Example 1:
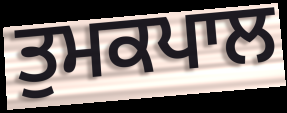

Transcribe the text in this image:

ਤੁਮਕਪਾਲ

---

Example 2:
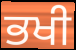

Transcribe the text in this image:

ਭਖੀ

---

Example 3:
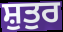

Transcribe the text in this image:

ਸ਼ੁਤੁਰ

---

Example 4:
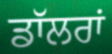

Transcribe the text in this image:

ਡਾੱਲਰਾਂ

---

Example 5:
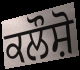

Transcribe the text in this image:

ਕਲੌਸ਼ੋ